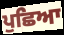
ਪੁਛਿਆ